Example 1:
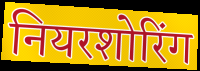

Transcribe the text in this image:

नियरशोरिंग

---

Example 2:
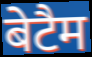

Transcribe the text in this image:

बेटैम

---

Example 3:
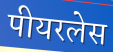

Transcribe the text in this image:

पीयरलेस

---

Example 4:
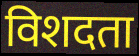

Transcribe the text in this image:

विशदता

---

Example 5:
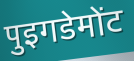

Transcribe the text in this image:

पुइगडेमोंट